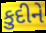
કુદીને